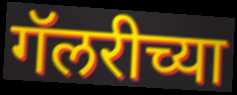
गॅलरीच्या